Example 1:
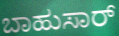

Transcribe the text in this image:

ಬಾಹುಸಾರ್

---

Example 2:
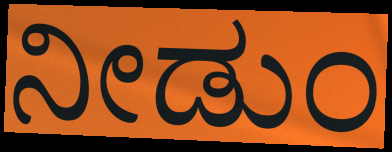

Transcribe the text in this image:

ನೀಡುಂ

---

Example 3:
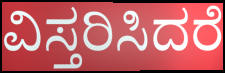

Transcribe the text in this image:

ವಿಸ್ತರಿಸಿದರೆ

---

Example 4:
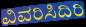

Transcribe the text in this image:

ವಿವರಿಸಿದಿರಿ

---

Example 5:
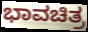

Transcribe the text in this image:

ಭಾವಚಿತ್ರ